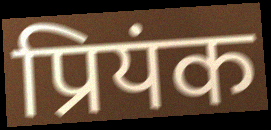
प्रियंक